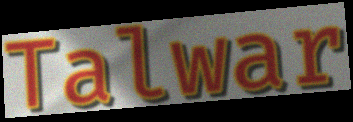
Talwar